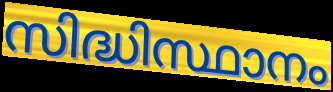
സിദ്ധിസ്ഥാനം